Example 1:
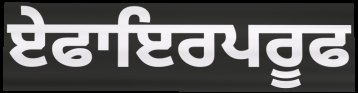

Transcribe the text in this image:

ਏਫਾਇਰਪਰੂਫ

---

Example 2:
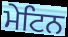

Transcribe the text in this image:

ਮੇਟਿਨ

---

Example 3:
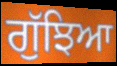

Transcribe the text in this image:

ਗੁੱਝਿਆ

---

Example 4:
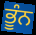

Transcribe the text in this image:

ਭੂੰਨ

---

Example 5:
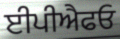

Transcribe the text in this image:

ਈਪੀਐਫਓ